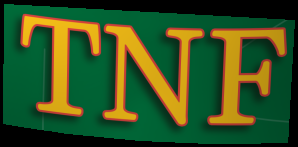
TNF